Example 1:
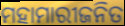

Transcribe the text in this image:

ମହାମାରୀଜନିତ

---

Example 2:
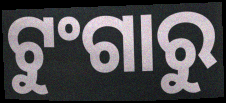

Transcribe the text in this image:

ଟୁଂଗାରୁ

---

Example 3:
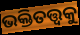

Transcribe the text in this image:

ଭକ୍ତିତତ୍ତ୍ୱକୁ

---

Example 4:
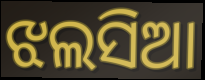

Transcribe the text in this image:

ଝଲସିଆ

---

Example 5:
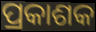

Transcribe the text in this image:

ପ୍ରକାଶକ